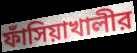
ফাঁসিয়াখালীর